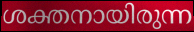
ശക്തനായിരുന്ന